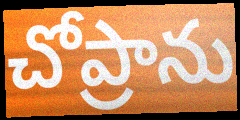
చోప్రాను